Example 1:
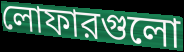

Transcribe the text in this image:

লোফারগুলো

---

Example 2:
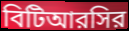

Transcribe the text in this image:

বিটিআরসির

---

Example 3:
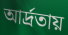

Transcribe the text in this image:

আর্দ্রতায়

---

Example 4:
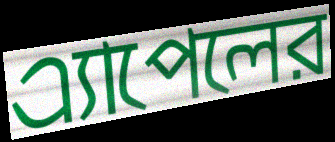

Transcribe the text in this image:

এ্যাপেলের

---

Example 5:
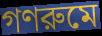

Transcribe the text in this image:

গণরুমে